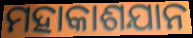
ମହାକାଶଯାନ